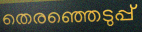
തെരഞ്ഞെടുപ്പ്